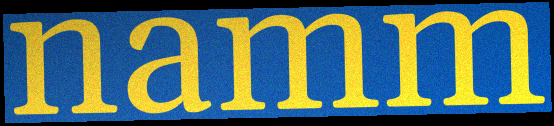
namm